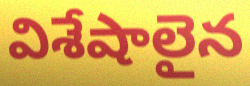
విశేషాలైన